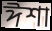
ঈশা